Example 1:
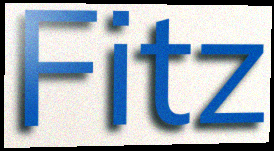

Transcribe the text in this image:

Fitz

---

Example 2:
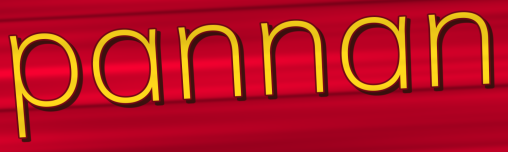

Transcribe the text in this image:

pannan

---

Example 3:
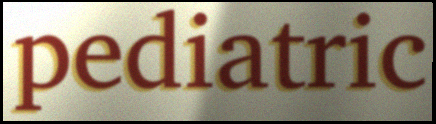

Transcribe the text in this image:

pediatric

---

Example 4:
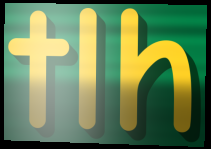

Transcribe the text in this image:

tlh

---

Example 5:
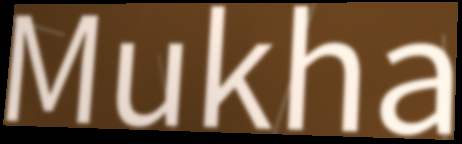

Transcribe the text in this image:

Mukha